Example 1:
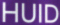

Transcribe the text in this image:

HUID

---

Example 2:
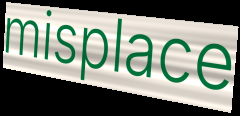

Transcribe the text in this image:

misplace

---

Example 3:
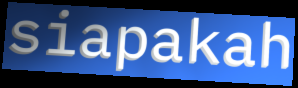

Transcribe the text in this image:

siapakah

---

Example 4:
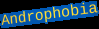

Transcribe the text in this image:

Androphobia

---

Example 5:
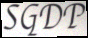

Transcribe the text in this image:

SGDP